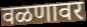
वळणावर